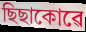
ছিছাকোৱে